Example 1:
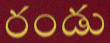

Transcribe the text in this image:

రండు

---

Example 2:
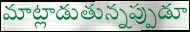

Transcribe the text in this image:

మాట్లాడుతున్నప్పుడూ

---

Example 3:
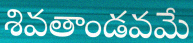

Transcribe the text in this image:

శివతాండవమే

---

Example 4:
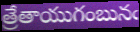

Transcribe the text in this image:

త్రేతాయుగంబునఁ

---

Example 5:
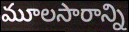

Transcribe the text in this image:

మూలసారాన్ని